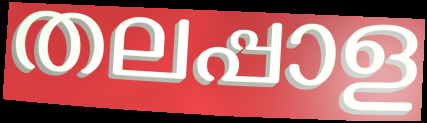
തലപ്പാള